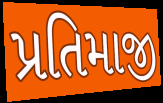
પ્રતિમાજી